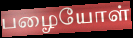
பழையோள்